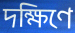
দক্ষিণে